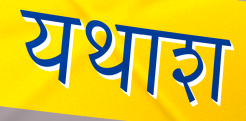
यथाश